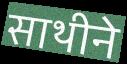
साथीने